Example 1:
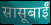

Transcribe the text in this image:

सासूबाईं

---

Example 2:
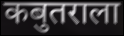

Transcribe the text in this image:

कबुतराला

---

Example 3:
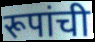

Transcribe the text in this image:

रूपांची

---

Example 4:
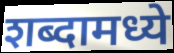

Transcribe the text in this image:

शब्दामध्ये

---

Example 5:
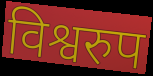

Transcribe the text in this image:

विश्वरुप